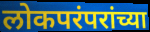
लोकपरंपरांच्या